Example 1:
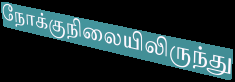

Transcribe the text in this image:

நோக்குநிலையிலிருந்து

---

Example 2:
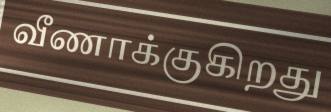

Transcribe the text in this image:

வீணாக்குகிறது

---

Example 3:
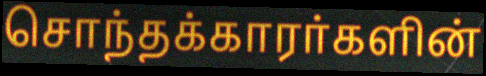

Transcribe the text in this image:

சொந்தக்காரர்களின்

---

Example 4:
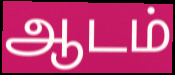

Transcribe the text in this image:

ஆடம்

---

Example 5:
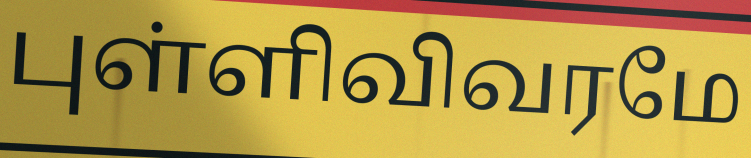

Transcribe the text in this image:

புள்ளிவிவரமே